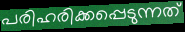
പരിഹരിക്കപ്പെടുന്നത്